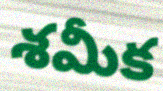
శమీక